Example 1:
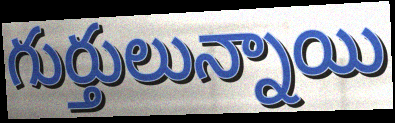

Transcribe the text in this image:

గుర్తులున్నాయి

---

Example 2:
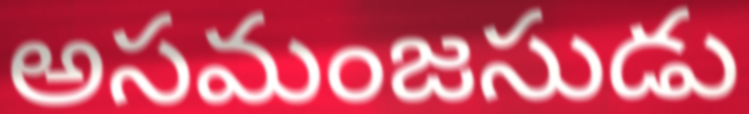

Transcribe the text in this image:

అసమంజసుడు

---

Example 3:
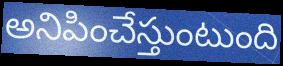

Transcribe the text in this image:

అనిపించేస్తుంటుంది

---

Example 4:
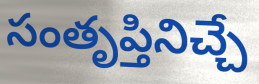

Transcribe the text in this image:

సంతృప్తినిచ్చే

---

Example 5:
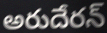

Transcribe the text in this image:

అరుదేరన్